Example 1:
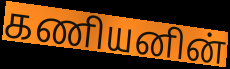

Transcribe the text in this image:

கணியனின்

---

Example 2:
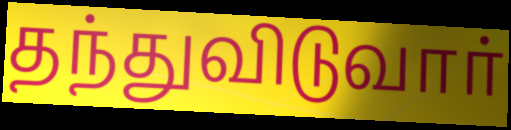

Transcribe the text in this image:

தந்துவிடுவார்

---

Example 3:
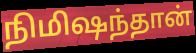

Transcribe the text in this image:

நிமிஷந்தான்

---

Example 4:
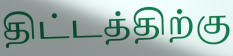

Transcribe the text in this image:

திட்டத்திற்கு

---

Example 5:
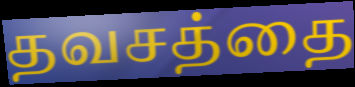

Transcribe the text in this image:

தவசத்தை